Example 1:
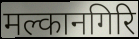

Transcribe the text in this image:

मल्कानगिरि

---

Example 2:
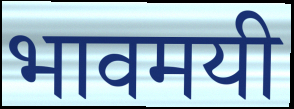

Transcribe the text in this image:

भावमयी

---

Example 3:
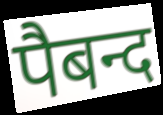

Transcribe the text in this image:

पैबन्द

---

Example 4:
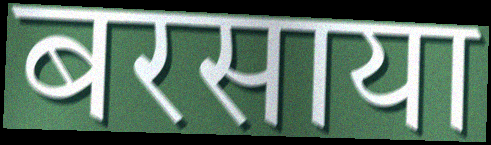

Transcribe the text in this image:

बरसाया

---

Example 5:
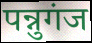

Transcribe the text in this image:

पन्नुगंज